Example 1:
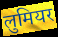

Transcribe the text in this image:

लुमियर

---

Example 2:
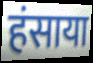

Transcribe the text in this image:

हंसाया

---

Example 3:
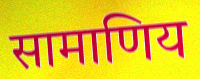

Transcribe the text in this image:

सामाणिय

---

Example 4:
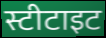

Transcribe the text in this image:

स्टीटाइट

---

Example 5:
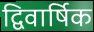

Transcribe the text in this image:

द्विवार्षिक